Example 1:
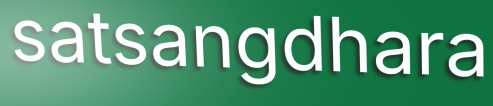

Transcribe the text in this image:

satsangdhara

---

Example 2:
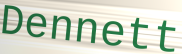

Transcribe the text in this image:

Dennett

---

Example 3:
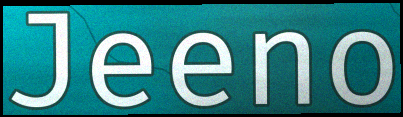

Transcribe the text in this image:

Jeeno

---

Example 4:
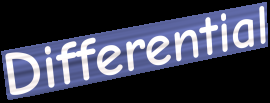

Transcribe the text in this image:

Differential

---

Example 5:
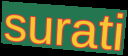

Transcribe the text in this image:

surati